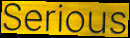
Serious